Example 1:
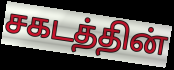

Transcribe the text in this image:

சகடத்தின்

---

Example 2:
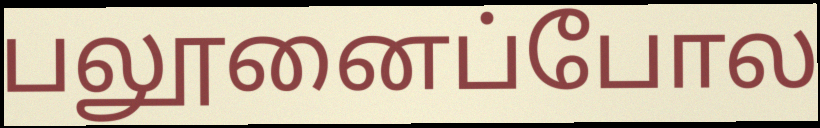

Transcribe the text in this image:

பலூனைப்போல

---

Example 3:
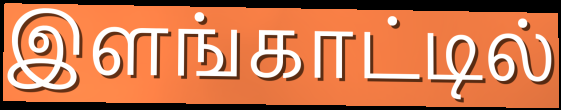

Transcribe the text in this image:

இளங்காட்டில்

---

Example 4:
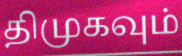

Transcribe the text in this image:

திமுகவும்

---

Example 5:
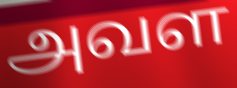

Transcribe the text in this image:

அவள